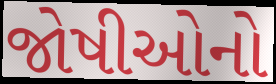
જોષીઓનો